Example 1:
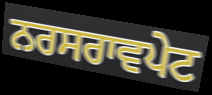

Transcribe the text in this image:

ਨਰਸਰਾਵਪੇਟ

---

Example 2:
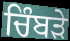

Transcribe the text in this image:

ਚਿੰਬਡ਼ੇ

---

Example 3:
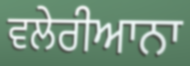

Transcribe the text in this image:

ਵਲੇਰੀਆਨਾ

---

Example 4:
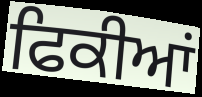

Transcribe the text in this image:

ਫਿਕੀਆਂ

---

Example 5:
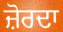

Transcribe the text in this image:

ਜ਼ੋਰਦਾ